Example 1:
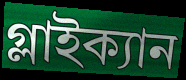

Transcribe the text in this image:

গ্লাইক্যান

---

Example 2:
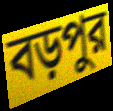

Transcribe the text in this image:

বড়পুর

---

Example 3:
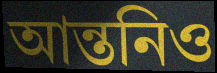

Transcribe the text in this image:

আন্তনিও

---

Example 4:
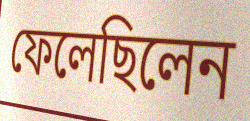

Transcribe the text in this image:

ফেলেছিলেন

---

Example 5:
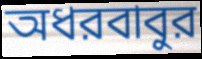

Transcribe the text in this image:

অধরবাবুর